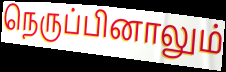
நெருப்பினாலும்